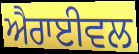
ਐਰਾਈਵਲ